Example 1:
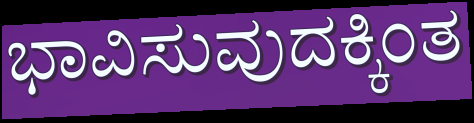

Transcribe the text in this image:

ಭಾವಿಸುವುದಕ್ಕಿಂತ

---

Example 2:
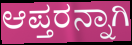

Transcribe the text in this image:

ಆಪ್ತರನ್ನಾಗಿ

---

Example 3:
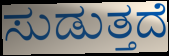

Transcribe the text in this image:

ಸುಡುತ್ತದೆ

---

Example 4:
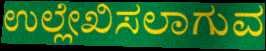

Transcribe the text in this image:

ಉಲ್ಲೇಖಿಸಲಾಗುವ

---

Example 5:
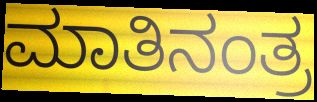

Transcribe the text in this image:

ಮಾತಿನಂತ್ರ